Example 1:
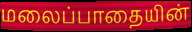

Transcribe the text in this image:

மலைப்பாதையின்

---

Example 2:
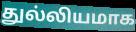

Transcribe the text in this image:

துல்லியமாக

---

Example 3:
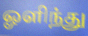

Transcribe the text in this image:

ஓளிந்து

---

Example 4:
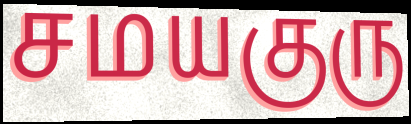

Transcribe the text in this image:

சமயகுரு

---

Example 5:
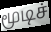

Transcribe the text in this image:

மூடிச்